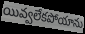
యివ్వలేకపోయాను